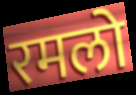
रमलो